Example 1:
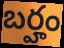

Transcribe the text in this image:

బర్హం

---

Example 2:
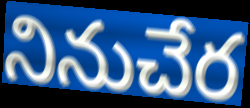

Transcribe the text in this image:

నినుచేర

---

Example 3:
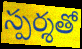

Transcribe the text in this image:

స్పర్శతో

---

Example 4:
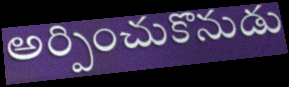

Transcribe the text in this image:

అర్పించుకొనుడు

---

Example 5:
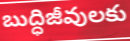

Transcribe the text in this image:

బుద్ధిజీవులకు